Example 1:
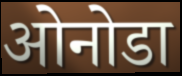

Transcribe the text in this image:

ओनोडा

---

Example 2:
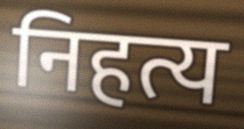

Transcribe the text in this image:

निहत्य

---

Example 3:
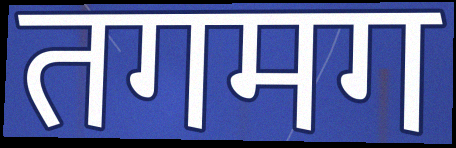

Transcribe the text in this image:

तगमग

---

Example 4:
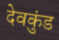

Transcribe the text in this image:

देवकुंड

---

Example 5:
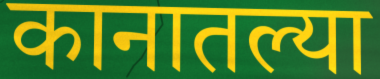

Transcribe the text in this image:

कानातल्या